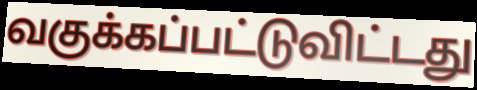
வகுக்கப்பட்டுவிட்டது